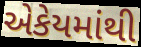
એકેયમાંથી